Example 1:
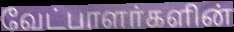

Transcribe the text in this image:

வேட்பாளர்களின்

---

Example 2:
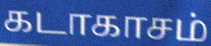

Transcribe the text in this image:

கடாகாசம்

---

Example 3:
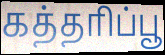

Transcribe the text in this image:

கத்தரிப்பூ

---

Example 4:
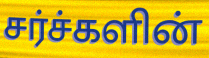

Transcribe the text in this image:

சர்ச்களின்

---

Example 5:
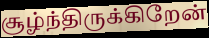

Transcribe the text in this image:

சூழ்ந்திருக்கிறேன்